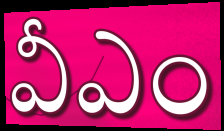
వీఎం